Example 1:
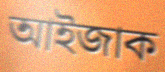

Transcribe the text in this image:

আইজাক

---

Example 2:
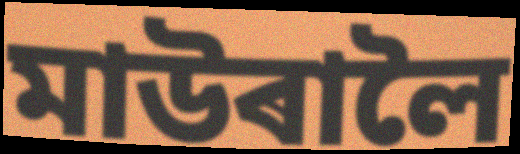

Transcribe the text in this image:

মাউৰালৈ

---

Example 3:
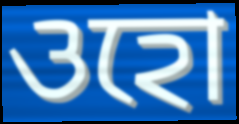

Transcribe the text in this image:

ওহো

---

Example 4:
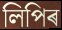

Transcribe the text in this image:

লিপিৰ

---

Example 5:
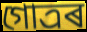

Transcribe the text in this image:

গোত্ৰৰ